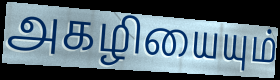
அகழியையும்